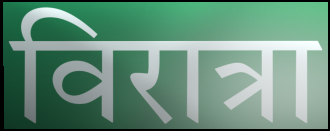
विरात्रा